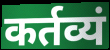
कर्तव्यं